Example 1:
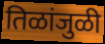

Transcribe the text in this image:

तिळांजुळी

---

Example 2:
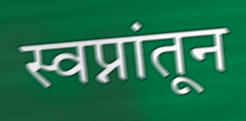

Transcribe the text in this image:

स्वप्नांतून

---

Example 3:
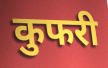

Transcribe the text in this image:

कुफरी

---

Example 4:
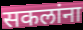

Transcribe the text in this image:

सकलांना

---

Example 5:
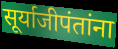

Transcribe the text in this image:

सूर्याजीपंतांना